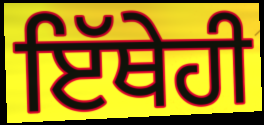
ਇੱਥੇਹੀ